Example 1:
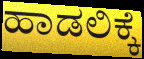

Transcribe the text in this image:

ಹಾಡಲಿಕ್ಕೆ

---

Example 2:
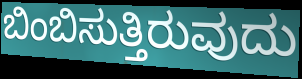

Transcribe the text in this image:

ಬಿಂಬಿಸುತ್ತಿರುವುದು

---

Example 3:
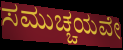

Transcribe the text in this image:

ಸಮುಚ್ಚಯವೇ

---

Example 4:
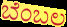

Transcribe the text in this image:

ಬೆಂಬಲ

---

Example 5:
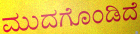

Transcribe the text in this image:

ಮುದಗೊಂಡಿದೆ